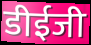
डीईजी